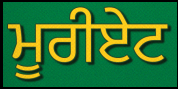
ਮੂਰੀਏਟ